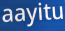
aayitu